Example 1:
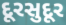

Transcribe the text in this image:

દૂરસુદૂર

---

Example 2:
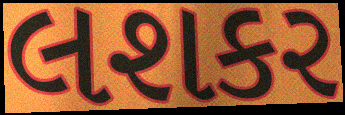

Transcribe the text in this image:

લશકર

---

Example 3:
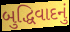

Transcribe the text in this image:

બુદ્ધિવાદનું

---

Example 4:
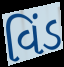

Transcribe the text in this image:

વિંડ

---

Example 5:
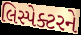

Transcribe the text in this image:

લિસ્પેક્ટરને